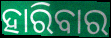
ହାରିବାର